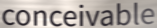
conceivable